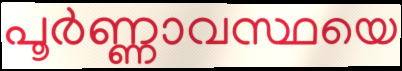
പൂർണ്ണാവസ്ഥയെ